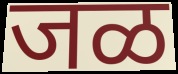
जळ